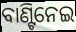
ବାଣ୍ଟିନେଇ